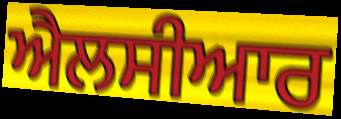
ਐਲਸੀਆਰ